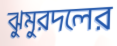
ঝুমুরদলের